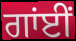
ਗਾਂਈਂ